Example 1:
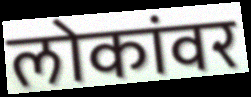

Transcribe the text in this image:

लोकांवर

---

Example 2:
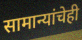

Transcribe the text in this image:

सामान्यांचेही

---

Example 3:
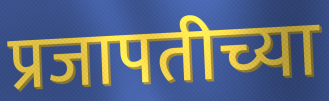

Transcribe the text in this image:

प्रजापतीच्या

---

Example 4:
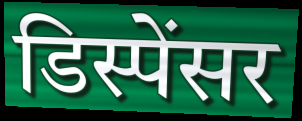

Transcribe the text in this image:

डिस्पेंसर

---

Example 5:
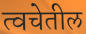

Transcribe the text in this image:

त्वचेतील